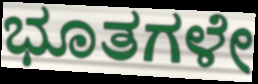
ಭೂತಗಳೇ